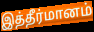
இத்தீர்மானம்